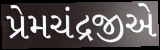
પ્રેમચંદ્રજીએ